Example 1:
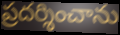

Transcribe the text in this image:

ప్రదర్శించాను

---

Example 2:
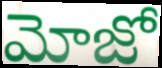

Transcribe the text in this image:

మోజో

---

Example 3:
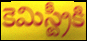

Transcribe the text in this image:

కెమిస్ట్రీకి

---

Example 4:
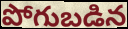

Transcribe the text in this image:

పోగుబడిన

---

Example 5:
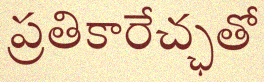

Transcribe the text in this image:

ప్రతికారేచ్ఛతో